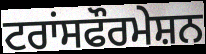
ਟਰਾਂਸਫੌਰਮੇਸ਼ਨ